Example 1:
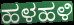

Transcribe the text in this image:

ಹಳಹಳಿ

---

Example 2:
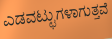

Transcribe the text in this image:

ಎಡವಟ್ಟುಗಳಾಗುತ್ತವೆ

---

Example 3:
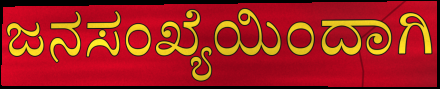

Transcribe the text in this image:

ಜನಸಂಖ್ಯೆಯಿಂದಾಗಿ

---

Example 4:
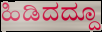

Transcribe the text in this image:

ಹಿಡಿದದ್ದೂ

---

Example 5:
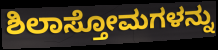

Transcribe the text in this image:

ಶಿಲಾಸ್ತೋಮಗಳನ್ನು